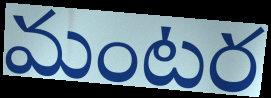
మంటర